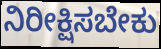
ನಿರೀಕ್ಷಿಸಬೇಕು